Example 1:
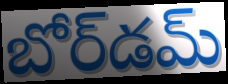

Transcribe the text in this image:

బోర్‌డమ్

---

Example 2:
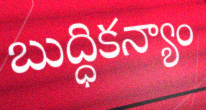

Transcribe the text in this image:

బుద్ధికన్యాం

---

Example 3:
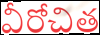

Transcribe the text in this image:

వీరోచిత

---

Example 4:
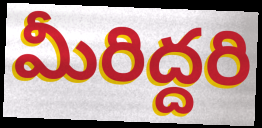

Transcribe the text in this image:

మీరిద్దరి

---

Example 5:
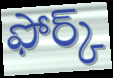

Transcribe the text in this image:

ఫోర్క్